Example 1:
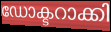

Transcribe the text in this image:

ഡോക്ടറാക്കി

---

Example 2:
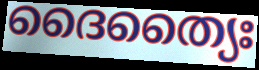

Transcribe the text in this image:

ദൈത്യൈഃ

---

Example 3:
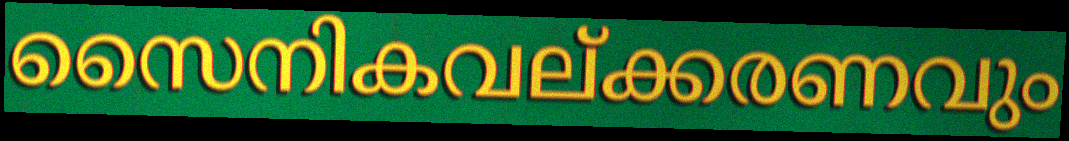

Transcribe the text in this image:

സൈനികവല്ക്കരണവും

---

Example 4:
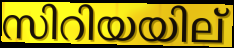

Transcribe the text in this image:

സിറിയയില്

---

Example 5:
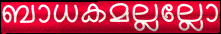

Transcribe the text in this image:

ബാധകമല്ലല്ലോ